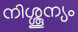
നിശ്ശൂന്യം